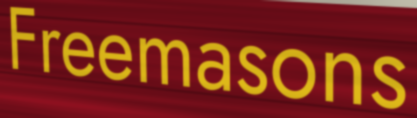
Freemasons